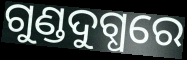
ଗୁଣ୍ଡଦୁଗ୍ଧରେ